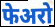
फेअरो